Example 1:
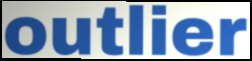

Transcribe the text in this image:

outlier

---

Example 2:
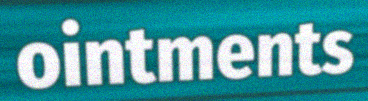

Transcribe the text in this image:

ointments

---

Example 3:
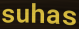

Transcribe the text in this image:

suhas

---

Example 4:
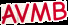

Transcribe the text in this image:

AVMB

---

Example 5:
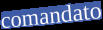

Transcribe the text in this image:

comandato